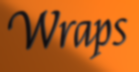
Wraps